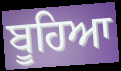
ਬੂਹਿਆ